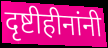
दृष्टीहीनांनी